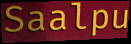
Saalpu